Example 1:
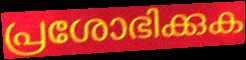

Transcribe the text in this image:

പ്രശോഭിക്കുക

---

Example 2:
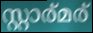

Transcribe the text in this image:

സ്റ്റാര്മര്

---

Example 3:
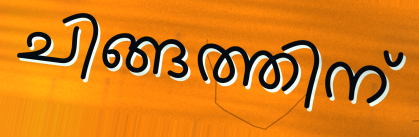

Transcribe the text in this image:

ചിങ്ങത്തിന്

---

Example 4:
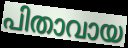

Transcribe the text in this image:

പിതാവായ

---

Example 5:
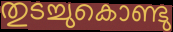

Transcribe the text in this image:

തുടച്ചുകൊണ്ടു